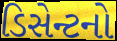
ડિસેન્ટનો